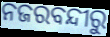
ନଜରବନ୍ଦୀରୁ